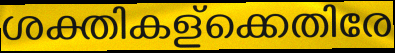
ശക്തികള്ക്കെതിരേ